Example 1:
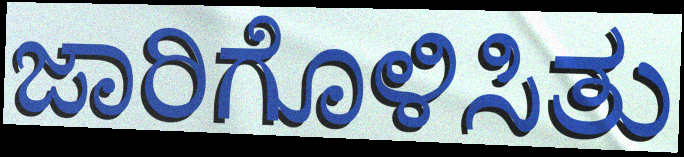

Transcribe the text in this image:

ಜಾರಿಗೊಳಿಸಿತು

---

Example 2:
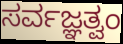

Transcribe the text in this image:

ಸರ್ವಜ್ಞತ್ವಂ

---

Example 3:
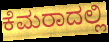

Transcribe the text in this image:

ಕೆಮರಾದಲ್ಲಿ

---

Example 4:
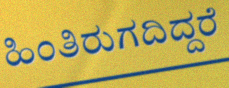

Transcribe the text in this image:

ಹಿಂತಿರುಗದಿದ್ದರೆ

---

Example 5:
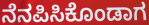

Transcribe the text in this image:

ನೆನಪಿಸಿಕೊಂಡಾಗ